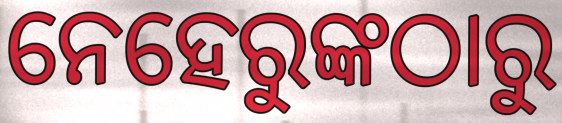
ନେହେରୁଙ୍କଠାରୁ